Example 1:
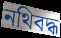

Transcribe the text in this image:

নথিবদ্ধ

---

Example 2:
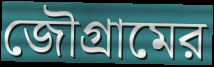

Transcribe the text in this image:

জৌগ্রামের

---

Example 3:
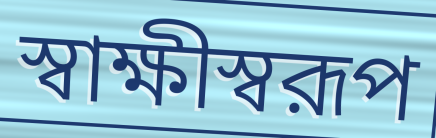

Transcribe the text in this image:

স্বাক্ষীস্বরূপ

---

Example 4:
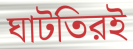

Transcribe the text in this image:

ঘাটতিরই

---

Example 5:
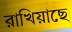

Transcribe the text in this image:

রাখিয়াছে